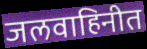
जलवाहिनीत